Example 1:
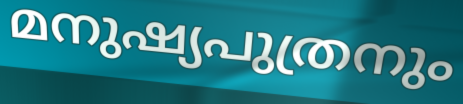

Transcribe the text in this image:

മനുഷ്യപുത്രനും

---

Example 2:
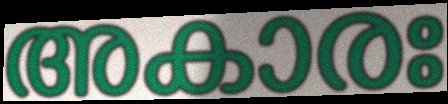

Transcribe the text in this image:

അകാരഃ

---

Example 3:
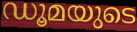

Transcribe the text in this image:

ഡൂമയുടെ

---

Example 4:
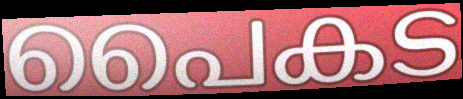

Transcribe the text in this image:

പൈകട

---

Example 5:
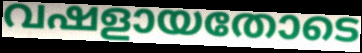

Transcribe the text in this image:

വഷളായതോടെ